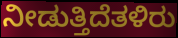
ನೀಡುತ್ತಿದೆತಳಿರು